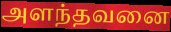
அளந்தவனை